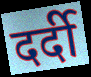
दर्दी